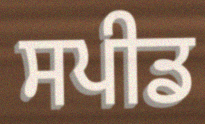
ਸਪੀਡ